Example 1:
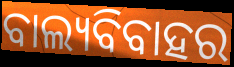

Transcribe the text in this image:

ବାଲ୍ୟବିବାହର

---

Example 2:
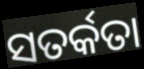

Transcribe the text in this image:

ସତର୍କତା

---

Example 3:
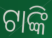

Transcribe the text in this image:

ଟାଙ୍କି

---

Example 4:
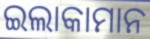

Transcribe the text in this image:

ଇଲାକାମାନ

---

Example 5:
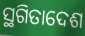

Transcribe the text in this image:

ସ୍ଥଗିତାଦେଶ